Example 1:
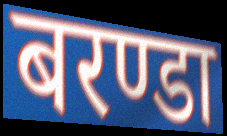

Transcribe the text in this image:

बरण्डा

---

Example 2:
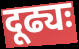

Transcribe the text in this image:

दूढ्यः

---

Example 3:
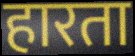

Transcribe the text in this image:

हारता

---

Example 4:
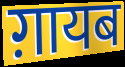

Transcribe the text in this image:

ग़ायब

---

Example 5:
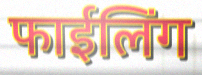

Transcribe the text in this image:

फाईलिंग